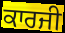
ਕਾਰਜੀ